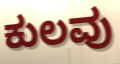
ಕುಲವು